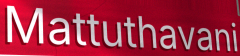
Mattuthavani